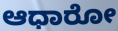
ಆಧಾರೋ